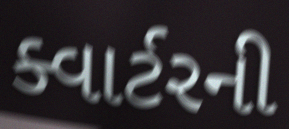
ક્વાર્ટરની